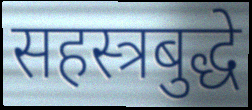
सहस्त्रबुद्धे